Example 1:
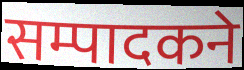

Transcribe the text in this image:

सम्पादकने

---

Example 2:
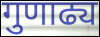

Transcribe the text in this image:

गुणाढ्य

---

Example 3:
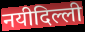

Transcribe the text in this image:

नयीदिल्ली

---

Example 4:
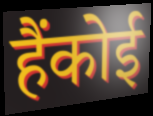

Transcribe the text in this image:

हैंकोई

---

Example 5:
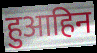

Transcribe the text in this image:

हुआहिन